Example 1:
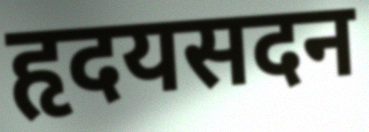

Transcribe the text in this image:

हृदयसदन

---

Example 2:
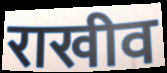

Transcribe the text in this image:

राखीव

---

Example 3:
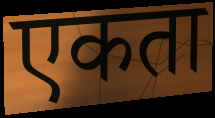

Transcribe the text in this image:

एकता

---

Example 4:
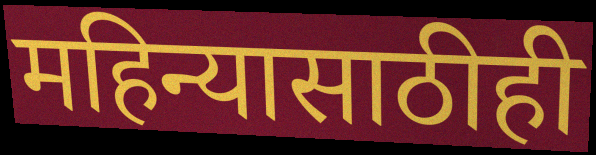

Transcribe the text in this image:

महिन्यासाठीही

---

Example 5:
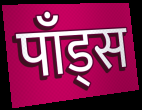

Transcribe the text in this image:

पाँड्स